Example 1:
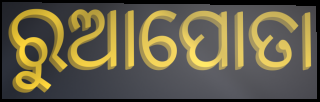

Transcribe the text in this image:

ରୁଆପୋତା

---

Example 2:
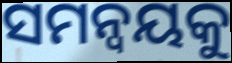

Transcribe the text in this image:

ସମନ୍ବୟକୁ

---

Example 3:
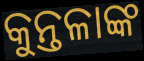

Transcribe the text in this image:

କୁନ୍ତଳାଙ୍କ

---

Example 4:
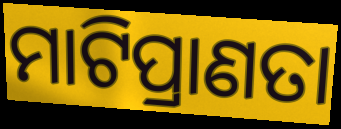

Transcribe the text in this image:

ମାଟିପ୍ରାଣତା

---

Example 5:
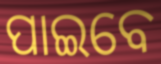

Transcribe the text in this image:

ପାଇବେ